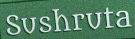
Sushruta